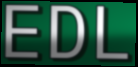
EDL